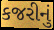
કજરીનું